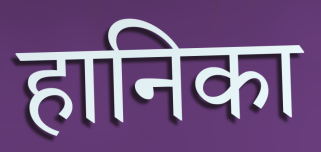
हानिका